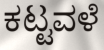
ಕಟ್ಟವಳೆ